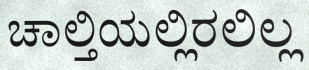
ಚಾಲ್ತಿಯಲ್ಲಿರಲಿಲ್ಲ